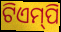
ଟିଏମ୍‌ପି